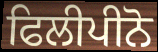
ਫਿਲੀਪੀਨੋ